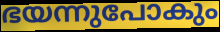
ഭയന്നുപോകും